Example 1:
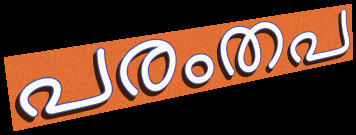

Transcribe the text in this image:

പരംതപ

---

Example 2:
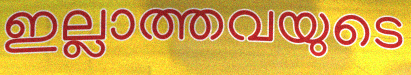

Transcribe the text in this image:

ഇല്ലാത്തവയുടെ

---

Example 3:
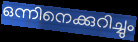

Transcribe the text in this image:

ഒന്നിനെക്കുറിച്ചും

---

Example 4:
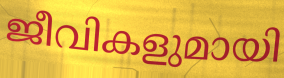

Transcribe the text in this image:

ജീവികളുമായി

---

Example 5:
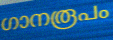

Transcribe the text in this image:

ഗാനരൂപം